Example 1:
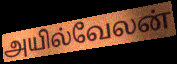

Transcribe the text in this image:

அயில்வேலன்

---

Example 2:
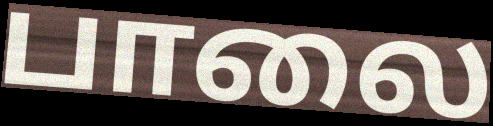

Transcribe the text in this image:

பாலை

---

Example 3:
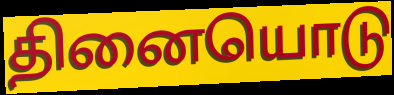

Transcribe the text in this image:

தினையொடு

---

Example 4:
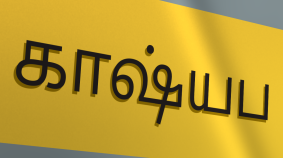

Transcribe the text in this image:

காஷ்யப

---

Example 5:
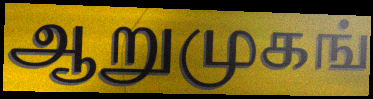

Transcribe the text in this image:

ஆறுமுகங்